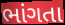
ભાંગતા